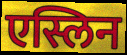
एस्लिन